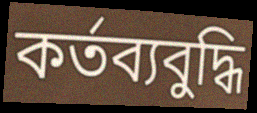
কর্তব্যবুদ্ধি